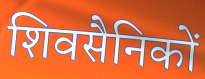
शिवसैनिकों